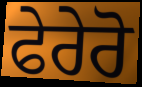
ਫੇਰੇਰੋ